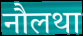
नौलथा